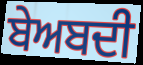
ਬੇਅਬਦੀ